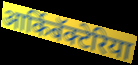
आर्किबॅक्टेरिया